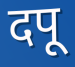
दपू